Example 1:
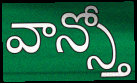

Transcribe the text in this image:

వాన్స్తో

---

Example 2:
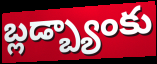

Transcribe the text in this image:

బ్లడ్బ్యాంకు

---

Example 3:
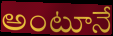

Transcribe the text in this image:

అంటూనే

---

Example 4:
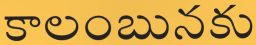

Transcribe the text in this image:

కాలంబునకు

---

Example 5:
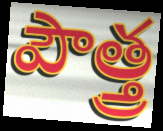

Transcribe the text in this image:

పౌత్త్ర